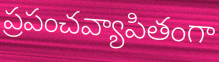
ప్రపంచవ్యాపితంగా